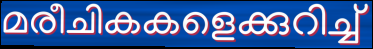
മരീചികകളെക്കുറിച്ച്